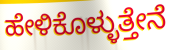
ಹೇಳಿಕೊಳ್ಳುತ್ತೇನೆ